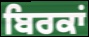
ਬਿਰਕਾਂ